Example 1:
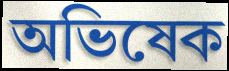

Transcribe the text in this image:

অভিষেক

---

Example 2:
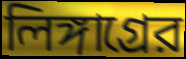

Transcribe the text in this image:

লিঙ্গাগ্রের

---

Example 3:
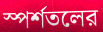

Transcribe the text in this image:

স্পর্শতলের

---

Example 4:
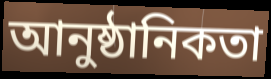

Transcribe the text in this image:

আনুষ্ঠানিকতা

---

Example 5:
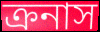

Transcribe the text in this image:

ক্রনাস